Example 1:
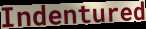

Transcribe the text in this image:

Indentured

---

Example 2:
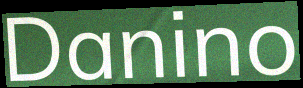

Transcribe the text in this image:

Danino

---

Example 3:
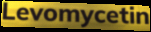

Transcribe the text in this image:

Levomycetin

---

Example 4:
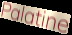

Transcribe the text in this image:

Palatine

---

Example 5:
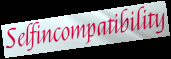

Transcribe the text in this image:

Selfincompatibility